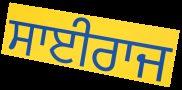
ਸਾਈਰਾਜ